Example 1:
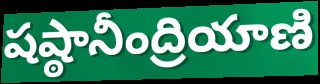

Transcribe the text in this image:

షష్ఠానీంద్రియాణి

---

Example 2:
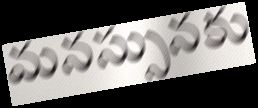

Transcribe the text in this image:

మనస్సునకు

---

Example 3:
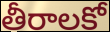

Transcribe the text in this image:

తీరాలకో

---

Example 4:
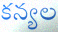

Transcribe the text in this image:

కన్యల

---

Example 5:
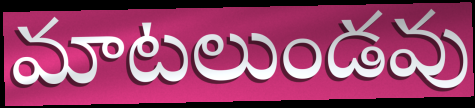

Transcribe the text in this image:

మాటలుండవు